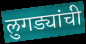
लुगड्यांची